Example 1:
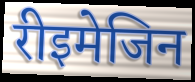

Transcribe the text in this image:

रीइमेजिन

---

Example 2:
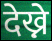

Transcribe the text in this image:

देख्ने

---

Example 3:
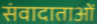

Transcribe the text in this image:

संवादाताओं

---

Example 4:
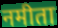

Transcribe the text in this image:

नमीता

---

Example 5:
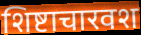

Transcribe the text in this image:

शिष्टाचारवश